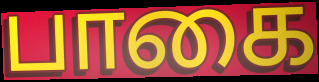
பாகை